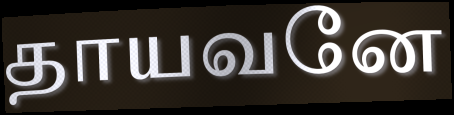
தாயவனே